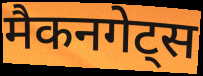
मैकनगेट्स